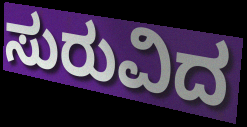
ಸುರುವಿದ